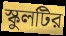
স্কুলটির